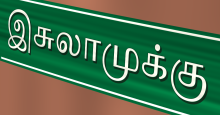
இசுலாமுக்கு